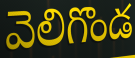
వెలిగొండ